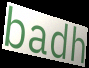
badh